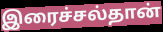
இரைச்சல்தான்